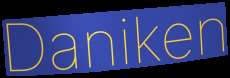
Daniken